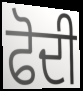
ਫੋਦੀ